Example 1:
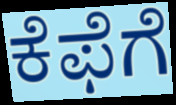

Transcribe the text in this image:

ಕೆಫೆಗೆ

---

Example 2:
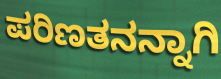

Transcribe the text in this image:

ಪರಿಣತನನ್ನಾಗಿ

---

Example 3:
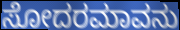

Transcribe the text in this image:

ಸೋದರಮಾವನು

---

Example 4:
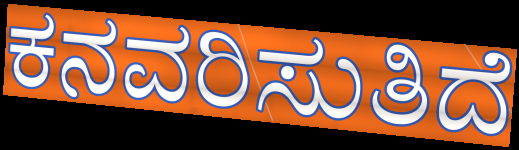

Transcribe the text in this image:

ಕನವರಿಸುತಿದೆ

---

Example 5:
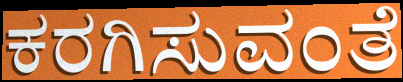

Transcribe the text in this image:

ಕರಗಿಸುವಂತೆ